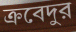
ক্রবেদুর